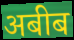
अबीब